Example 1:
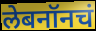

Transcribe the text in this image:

लेबनॉनचं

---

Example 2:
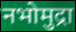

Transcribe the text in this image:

नभोमुद्रा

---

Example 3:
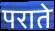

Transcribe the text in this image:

पराते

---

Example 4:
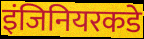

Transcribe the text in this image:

इंजिनियरकडे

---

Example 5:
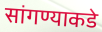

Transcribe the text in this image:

सांगण्याकडे